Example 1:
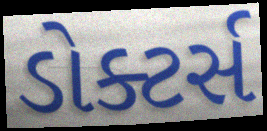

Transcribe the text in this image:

ડોક્ટર્સ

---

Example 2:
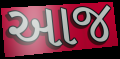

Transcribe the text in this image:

આજ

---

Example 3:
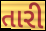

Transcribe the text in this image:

તારી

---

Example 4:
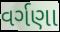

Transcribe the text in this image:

વર્ગણા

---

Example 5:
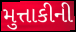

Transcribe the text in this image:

મુત્તાકીની